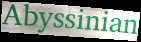
Abyssinian